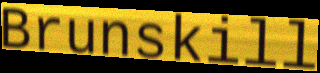
Brunskill